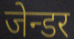
जेन्डर